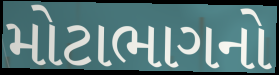
મોટાભાગનો